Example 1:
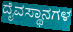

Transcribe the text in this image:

ದೈವಸ್ಥಾನಗಳ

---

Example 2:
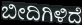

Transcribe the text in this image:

ಬೀದಿಗಿಳಿದೆ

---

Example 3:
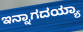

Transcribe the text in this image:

ಇನ್ನಾಗದಯ್ಯಾ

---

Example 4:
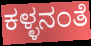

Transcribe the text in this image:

ಕಳ್ಳನಂತೆ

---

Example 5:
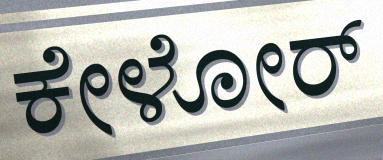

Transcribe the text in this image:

ಕೇಳೋರ್